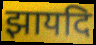
झायदि